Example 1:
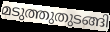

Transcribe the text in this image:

മടുത്തുതുടങ്ങി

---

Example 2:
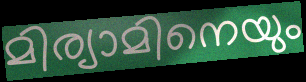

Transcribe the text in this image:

മിര്യാമിനെയും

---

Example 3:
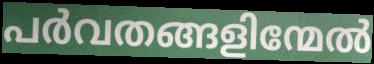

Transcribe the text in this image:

പർവതങ്ങളിന്മേൽ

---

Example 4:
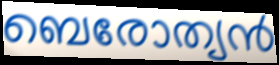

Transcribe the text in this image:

ബെരോത്യൻ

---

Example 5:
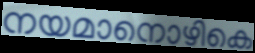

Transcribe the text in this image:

നയമാനൊഴികെ